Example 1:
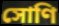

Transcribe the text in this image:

সোণি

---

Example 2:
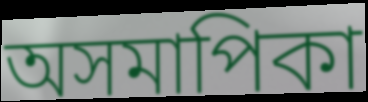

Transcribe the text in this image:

অসমাপিকা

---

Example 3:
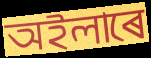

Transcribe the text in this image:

অইলাৰে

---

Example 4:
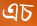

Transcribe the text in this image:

এচ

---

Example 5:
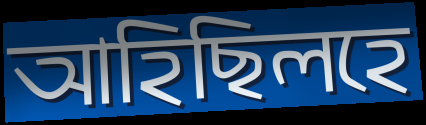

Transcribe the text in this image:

আহিছিলহে